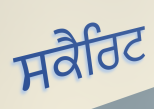
ਸਕੈਰਿਟ